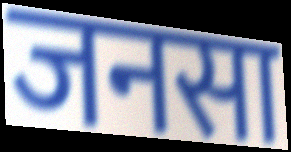
जनसा